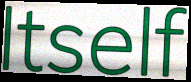
Itself